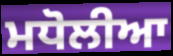
ਮਧੋਲੀਆ